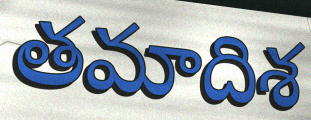
తమాదిశ